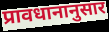
प्रावधानानुसार